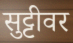
सुट्टीवर